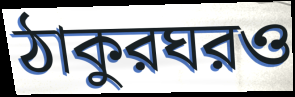
ঠাকুরঘরও